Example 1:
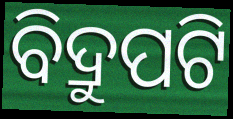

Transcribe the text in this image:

ବିଦ୍ରୁପଟି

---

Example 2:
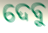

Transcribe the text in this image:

ଦେବୁ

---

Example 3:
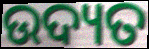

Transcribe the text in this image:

ଉଦ୍ୟତ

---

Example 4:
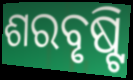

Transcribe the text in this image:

ଶରବୃଷ୍ଟି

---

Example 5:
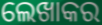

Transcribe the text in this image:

ଲେଖାକର